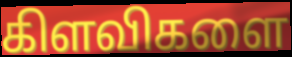
கிளவிகளை